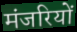
मंजरियों